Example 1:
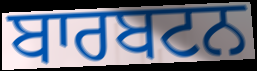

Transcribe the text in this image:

ਬਾਰਬਟਨ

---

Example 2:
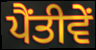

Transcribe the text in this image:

ਪੈਂਤੀਵੇਂ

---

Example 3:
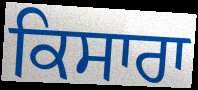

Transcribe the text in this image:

ਕਿਸਾਰਾ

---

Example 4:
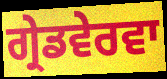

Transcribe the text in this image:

ਗ੍ਰੇਡਵੇਰਵਾ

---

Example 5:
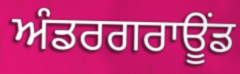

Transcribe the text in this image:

ਅੰਡਰਗਰਾਊੰਡ